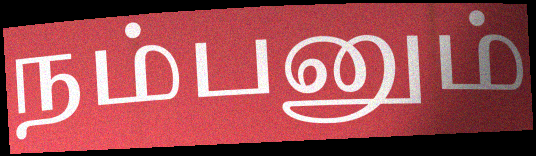
நம்பனும்